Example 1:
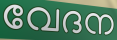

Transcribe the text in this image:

വേദന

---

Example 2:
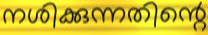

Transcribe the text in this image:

നശിക്കുന്നതിന്റെ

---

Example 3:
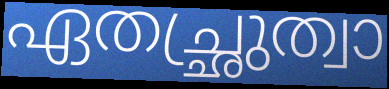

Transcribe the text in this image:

ഏതച്ഛ്രുത്വാ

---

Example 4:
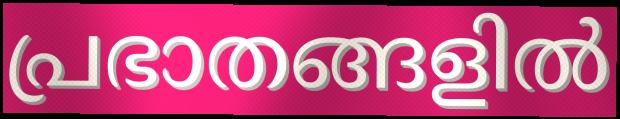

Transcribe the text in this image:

പ്രഭാതങ്ങളിൽ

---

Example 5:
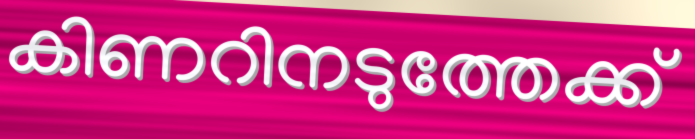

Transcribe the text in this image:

കിണറിനടുത്തേക്ക്